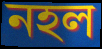
নহল